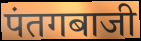
पंतगबाजी